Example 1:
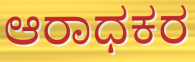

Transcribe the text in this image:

ಆರಾಧಕರ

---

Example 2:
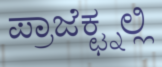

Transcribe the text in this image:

ಪ್ರಾಜೆಕ್ಟ್ನಲ್ಲಿ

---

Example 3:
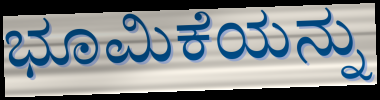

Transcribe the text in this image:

ಭೂಮಿಕೆಯನ್ನು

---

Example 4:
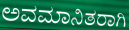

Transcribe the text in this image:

ಅವಮಾನಿತರಾಗಿ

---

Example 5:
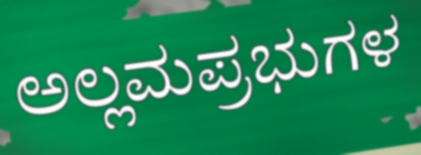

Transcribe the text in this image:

ಅಲ್ಲಮಪ್ರಭುಗಳ